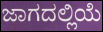
ಜಾಗದಲ್ಲಿಯೆ